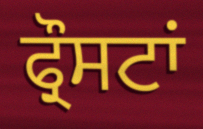
ਫ੍ਰੌਸਟਾਂ